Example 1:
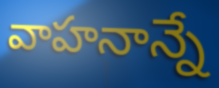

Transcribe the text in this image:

వాహనాన్నే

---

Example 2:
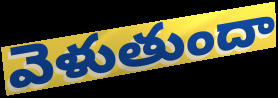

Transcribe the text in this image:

వెళుతుందా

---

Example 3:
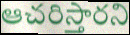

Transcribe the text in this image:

ఆచరిస్తారని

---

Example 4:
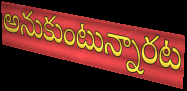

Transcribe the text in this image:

అనుకుంటున్నారట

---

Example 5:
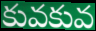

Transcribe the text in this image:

కువకువ